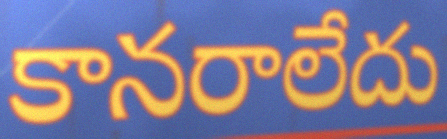
కానరాలేదు